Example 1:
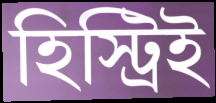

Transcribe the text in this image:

হিস্ট্রিই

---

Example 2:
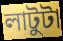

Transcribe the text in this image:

লাটুটা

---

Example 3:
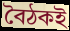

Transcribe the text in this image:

বৈঠকই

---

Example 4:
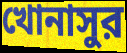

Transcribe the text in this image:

খোনাসুর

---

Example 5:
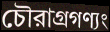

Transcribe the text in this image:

চৌরাগ্রগণ্যং